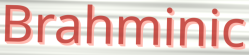
Brahminic